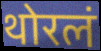
थोरलं